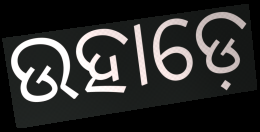
ଉହାଡ଼େ